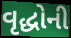
વૃદ્ધોની